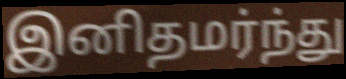
இனிதமர்ந்து